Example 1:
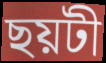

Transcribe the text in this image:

ছয়টী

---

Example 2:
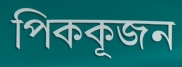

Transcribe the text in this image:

পিককূজন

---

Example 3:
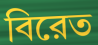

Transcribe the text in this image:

বিরেত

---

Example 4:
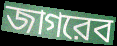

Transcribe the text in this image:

জাগরেব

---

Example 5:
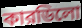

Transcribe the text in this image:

কারডিলো